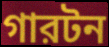
গারটন